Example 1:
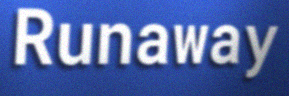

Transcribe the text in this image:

Runaway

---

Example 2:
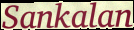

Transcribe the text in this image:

Sankalan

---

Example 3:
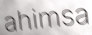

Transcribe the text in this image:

ahimsa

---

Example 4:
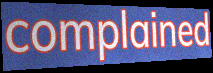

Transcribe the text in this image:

complained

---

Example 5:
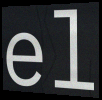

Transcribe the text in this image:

el